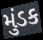
મુંડક